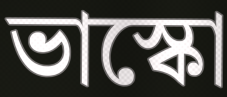
ভাস্কো